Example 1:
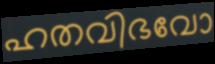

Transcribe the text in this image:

ഹതവിഭവോ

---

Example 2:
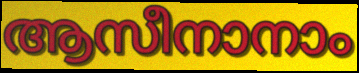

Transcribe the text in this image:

ആസീനാനാം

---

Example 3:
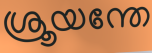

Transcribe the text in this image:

ശ്രൂയന്തേ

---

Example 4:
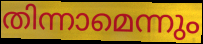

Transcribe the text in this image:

തിന്നാമെന്നും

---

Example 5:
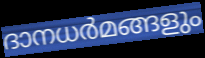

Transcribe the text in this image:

ദാനധർമങ്ങളും